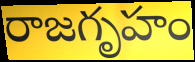
రాజగృహం